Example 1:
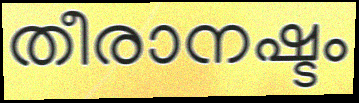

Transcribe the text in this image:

തീരാനഷ്ടം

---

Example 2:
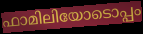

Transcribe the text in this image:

ഫാമിലിയോടൊപ്പം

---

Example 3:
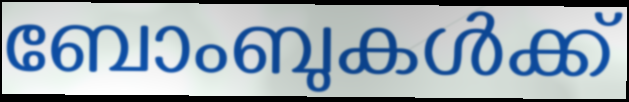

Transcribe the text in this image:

ബോംബുകൾക്ക്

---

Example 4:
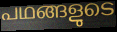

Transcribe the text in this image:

പഥങ്ങളുടെ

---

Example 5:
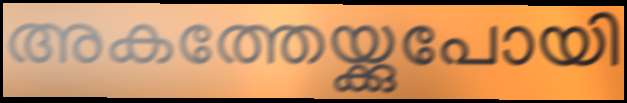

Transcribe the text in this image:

അകത്തേയ്ക്കുപോയി